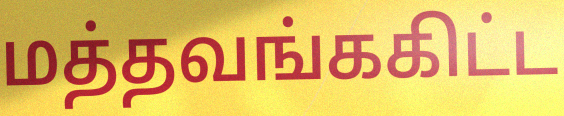
மத்தவங்ககிட்ட